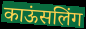
काऊंसलिंग